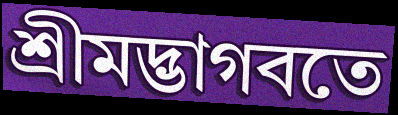
শ্রীমদ্ভাগবতে